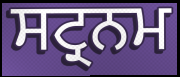
ਸਟ੍ਰਨਮ